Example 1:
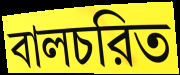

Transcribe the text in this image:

বালচরিত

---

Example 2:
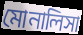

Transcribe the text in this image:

মোনালিসা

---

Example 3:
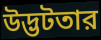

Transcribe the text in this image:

উদ্ভটতার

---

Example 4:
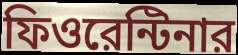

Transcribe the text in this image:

ফিওরেন্টিনার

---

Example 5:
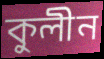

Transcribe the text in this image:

কুলীন